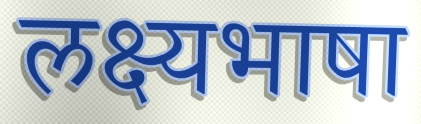
लक्ष्यभाषा